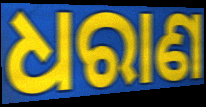
ଧରାଣ